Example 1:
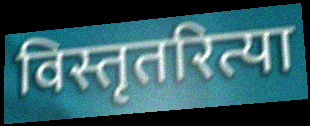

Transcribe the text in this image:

विस्तृतरित्या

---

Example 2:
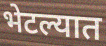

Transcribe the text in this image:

भेटल्यात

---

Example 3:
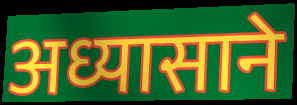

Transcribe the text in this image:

अध्यासाने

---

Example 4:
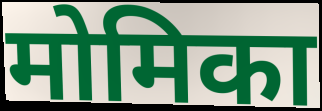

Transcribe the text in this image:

मोमिका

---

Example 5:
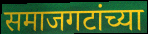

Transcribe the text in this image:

समाजगटांच्या